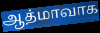
ஆத்மாவாக